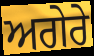
ਅਗੇਰੇ